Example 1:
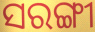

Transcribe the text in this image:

ସରଙ୍ଗୀ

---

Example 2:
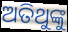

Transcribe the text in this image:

ଅତିଥୁଙ୍କୁ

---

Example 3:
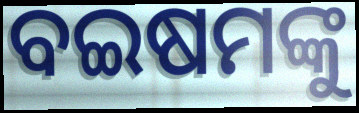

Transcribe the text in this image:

ବଇଷମଙ୍କୁ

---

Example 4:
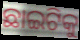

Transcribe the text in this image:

ଛାଇଟିକୁ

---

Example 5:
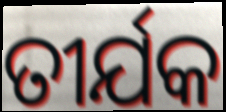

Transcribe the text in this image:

ତୀର୍ଯକ